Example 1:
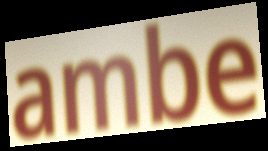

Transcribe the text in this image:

ambe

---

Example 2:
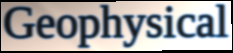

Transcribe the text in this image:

Geophysical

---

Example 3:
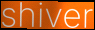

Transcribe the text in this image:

shiver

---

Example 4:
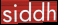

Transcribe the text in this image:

siddh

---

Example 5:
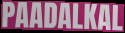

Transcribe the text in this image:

PAADALKAL